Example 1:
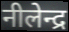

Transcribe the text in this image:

नीलेन्द्र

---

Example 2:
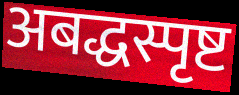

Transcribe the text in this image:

अबद्धस्पृष्ट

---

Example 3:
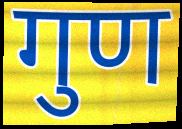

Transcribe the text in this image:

गुण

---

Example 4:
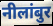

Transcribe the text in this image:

नीलांबुर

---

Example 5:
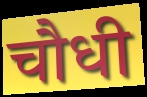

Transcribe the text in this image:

चौधी